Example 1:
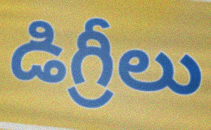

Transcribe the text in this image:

డిగ్రీలు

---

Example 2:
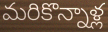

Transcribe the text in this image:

మరికొన్నాళ్ల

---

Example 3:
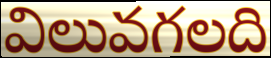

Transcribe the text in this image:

విలువగలది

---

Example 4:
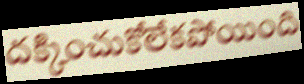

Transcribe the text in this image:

దక్కించుకోలేకపోయింది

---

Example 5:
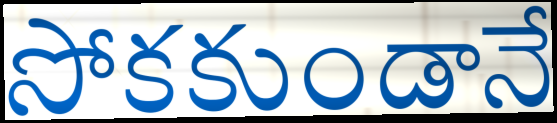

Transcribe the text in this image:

సోకకుండానే